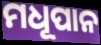
ମଧୂପାନ